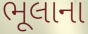
ભૂલાના